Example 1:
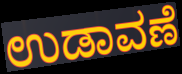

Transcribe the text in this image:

ಉಡಾವಣೆ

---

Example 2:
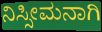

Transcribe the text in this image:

ನಿಸ್ಸೀಮನಾಗಿ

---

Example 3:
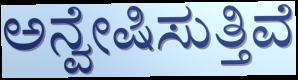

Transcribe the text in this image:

ಅನ್ವೇಷಿಸುತ್ತಿವೆ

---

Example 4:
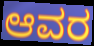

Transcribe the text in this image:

ಆವರ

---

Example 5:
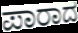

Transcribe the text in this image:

ಪಾರಾದ